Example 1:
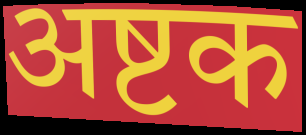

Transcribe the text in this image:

अष्टक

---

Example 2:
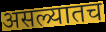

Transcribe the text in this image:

असल्यातच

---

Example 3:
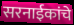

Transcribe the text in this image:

सरनाईकांचे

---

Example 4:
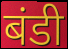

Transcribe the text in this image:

बंडी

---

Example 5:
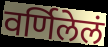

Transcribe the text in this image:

वर्णिलेलं